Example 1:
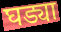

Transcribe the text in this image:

घड्या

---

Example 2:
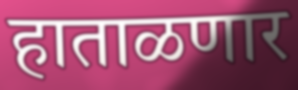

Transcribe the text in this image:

हाताळणार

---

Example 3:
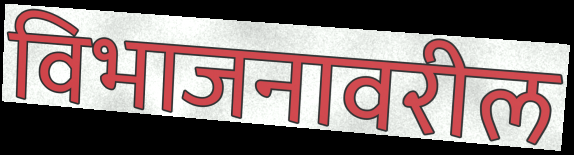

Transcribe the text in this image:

विभाजनावरील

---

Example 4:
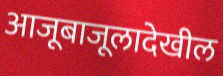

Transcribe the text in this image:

आजूबाजूलादेखील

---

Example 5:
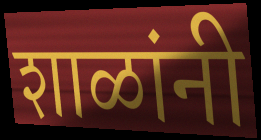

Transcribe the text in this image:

शाळांनी